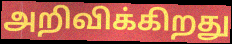
அறிவிக்கிறது